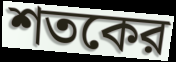
শতকের